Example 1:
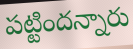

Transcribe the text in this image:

పట్టిందన్నారు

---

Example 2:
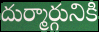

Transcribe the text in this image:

దుర్మార్గునికి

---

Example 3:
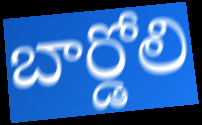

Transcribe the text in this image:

బార్డోలి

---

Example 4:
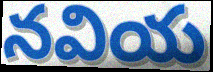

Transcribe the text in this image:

నవియ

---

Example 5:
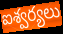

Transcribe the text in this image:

ఐశ్వర్యలు